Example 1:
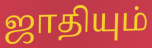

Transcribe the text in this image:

ஜாதியும்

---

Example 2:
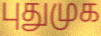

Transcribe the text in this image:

புதுமுக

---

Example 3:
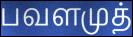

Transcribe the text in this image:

பவளமுத்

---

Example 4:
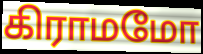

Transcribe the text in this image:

கிராமமோ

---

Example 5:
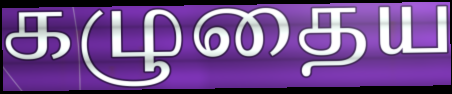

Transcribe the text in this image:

கழுதைய